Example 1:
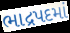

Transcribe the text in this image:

ભાદ્રપદમાં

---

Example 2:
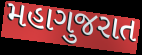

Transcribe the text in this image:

મહાગુજરાત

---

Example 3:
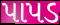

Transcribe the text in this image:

પાપડ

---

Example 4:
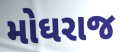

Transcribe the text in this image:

મોઘરાજ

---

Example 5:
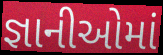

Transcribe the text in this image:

જ્ઞાનીઓમાં